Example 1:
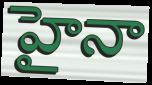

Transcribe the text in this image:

హైనా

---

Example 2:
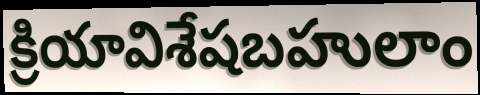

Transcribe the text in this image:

క్రియావిశేషబహులాం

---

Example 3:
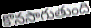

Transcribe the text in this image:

కొనసాగుతుంది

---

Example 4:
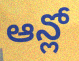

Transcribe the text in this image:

ఆన్లో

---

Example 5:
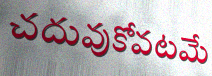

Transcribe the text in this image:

చదువుకోవటమే